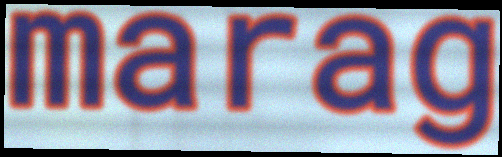
marag